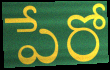
పేరో